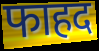
फाहद